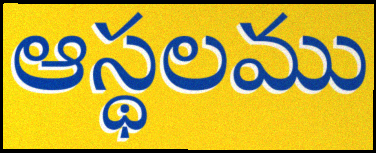
ఆస్థలము